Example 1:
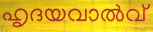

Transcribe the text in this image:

ഹൃദയവാൽവ്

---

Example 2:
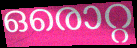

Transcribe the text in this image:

ഒരൊറ്റ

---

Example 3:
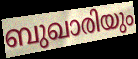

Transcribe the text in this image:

ബുഖാരിയും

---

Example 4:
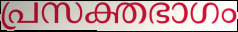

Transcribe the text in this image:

പ്രസക്തഭാഗം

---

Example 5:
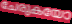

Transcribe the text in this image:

ചേരുകയോ